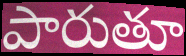
పారుతూ